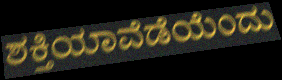
ಶಕ್ತಿಯಾವೆಡೆಯೆಂದು